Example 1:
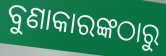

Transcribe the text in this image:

ବୁଣାକାରଙ୍କଠାରୁ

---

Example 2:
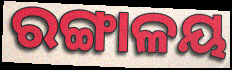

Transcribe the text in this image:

ରଙ୍ଗାଳୟ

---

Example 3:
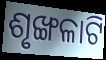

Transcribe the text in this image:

ଶୃଙ୍ଖଳାଟି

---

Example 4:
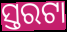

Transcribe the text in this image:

ସ୍ତରଟା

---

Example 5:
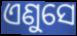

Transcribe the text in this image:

ଏଣୁସେ